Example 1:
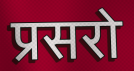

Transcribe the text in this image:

प्रसरो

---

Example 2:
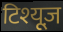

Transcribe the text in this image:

टिश्यूज़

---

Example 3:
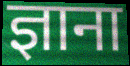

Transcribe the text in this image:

ज्ञाना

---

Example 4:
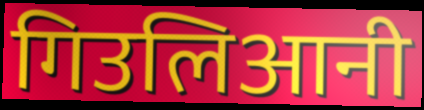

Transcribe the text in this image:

गिउलिआनी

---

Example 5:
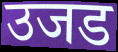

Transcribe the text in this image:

उजड